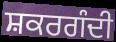
ਸ਼ਕਰਗੰਦੀ